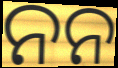
ନନ